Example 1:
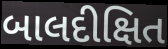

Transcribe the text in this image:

બાલદીક્ષિત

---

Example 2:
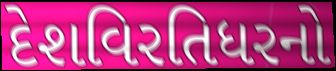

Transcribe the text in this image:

દેશવિરતિધરનો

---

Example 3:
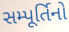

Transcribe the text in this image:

સમ્પૂર્તિનો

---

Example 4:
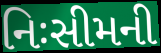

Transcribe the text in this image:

નિઃસીમની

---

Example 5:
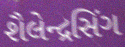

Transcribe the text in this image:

શૈલેન્દ્રસિંગ